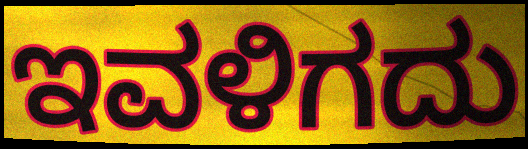
ಇವಳಿಗದು